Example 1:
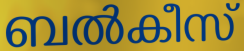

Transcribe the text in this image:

ബൽകീസ്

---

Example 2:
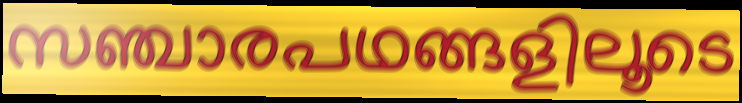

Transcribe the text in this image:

സഞ്ചാരപഥങ്ങളിലൂടെ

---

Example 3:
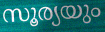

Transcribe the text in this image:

സൂര്യയും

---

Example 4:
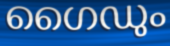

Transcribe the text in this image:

ഗൈഡും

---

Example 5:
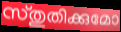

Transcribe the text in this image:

സ്തുതിക്കുമോ